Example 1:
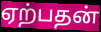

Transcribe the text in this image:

ஏற்பதன்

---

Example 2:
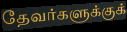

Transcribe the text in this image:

தேவர்களுக்குக்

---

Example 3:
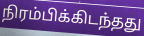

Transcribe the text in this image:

நிரம்பிக்கிடந்தது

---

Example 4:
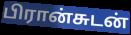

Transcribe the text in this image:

பிரான்சுடன்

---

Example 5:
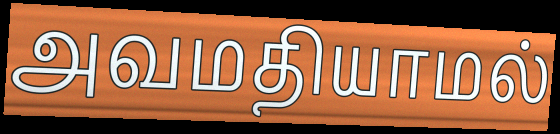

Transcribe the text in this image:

அவமதியாமல்